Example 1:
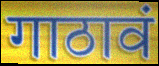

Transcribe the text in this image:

गाठावं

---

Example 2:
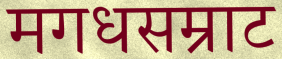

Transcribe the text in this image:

मगधसम्राट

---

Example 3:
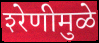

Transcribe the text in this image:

श्रेणीमुळे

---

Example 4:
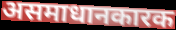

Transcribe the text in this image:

असमाधानकारक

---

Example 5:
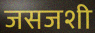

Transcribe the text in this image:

जसजशी